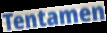
Tentamen